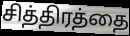
சித்திரத்தை